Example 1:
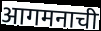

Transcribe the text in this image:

आगमनाची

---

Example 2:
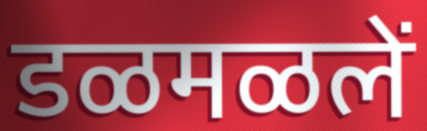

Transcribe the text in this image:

डळमळलें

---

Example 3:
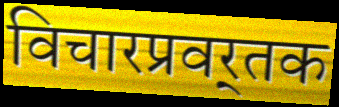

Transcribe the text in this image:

विचारप्रवर्तक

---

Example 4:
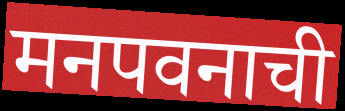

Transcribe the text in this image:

मनपवनाची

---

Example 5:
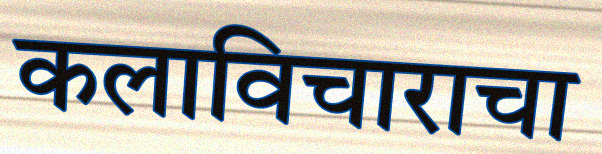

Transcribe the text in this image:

कलाविचाराचा